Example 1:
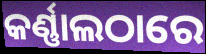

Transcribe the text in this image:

କର୍ଣ୍ଣାଲଠାରେ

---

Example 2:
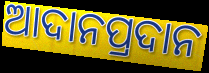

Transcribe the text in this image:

ଆଦାନପ୍ରଦାନ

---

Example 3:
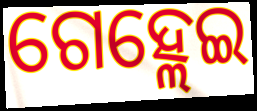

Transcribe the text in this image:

ଗେହ୍ଲେଇ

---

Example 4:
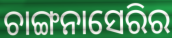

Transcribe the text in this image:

ଚାଙ୍ଗନାସେରିର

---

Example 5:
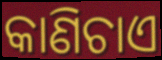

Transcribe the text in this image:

କାଣିଚାଏ